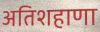
अतिशहाणा